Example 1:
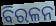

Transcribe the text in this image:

ବିରଳନ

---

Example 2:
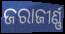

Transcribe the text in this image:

ଜରାଜୀର୍ଣ୍ଣ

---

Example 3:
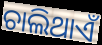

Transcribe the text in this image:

ଚାଲିଥାଏଁ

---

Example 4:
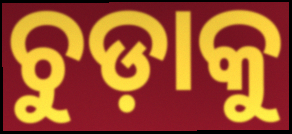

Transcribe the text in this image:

ଚୁଡ଼ାକୁ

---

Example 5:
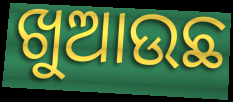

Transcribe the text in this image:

ଖୁଆଉଛ